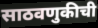
साठवणुकीची